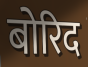
बोरिद